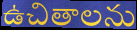
ఉచితాలను